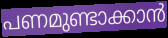
പണമുണ്ടാക്കാൻ